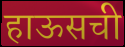
हाऊसची